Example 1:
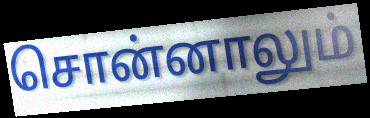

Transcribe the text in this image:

சொன்னாலும்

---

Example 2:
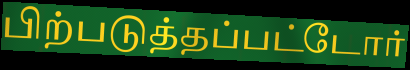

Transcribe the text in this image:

பிற்படுத்தப்பட்டோர்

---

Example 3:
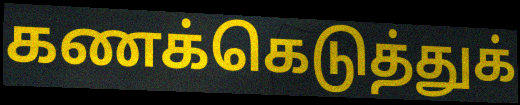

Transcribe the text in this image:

கணக்கெடுத்துக்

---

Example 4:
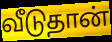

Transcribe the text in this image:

வீடுதான்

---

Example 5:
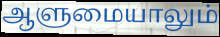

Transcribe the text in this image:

ஆளுமையாலும்